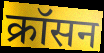
क्रॉसन